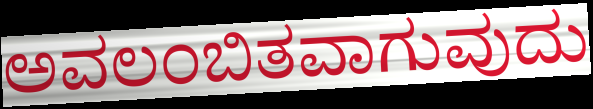
ಅವಲಂಬಿತವಾಗುವುದು